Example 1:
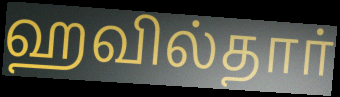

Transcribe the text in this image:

ஹவில்தார்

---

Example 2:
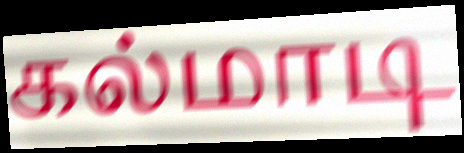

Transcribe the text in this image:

கல்மாடி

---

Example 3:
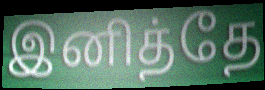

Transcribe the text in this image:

இனித்தே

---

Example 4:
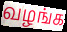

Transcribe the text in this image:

வழங்க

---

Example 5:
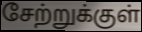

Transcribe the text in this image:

சேற்றுக்குள்